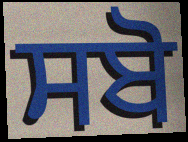
ਸਬੋ